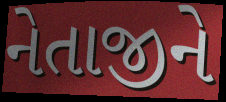
નેતાજીને